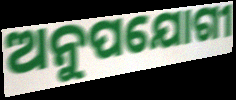
ଅନୁପଯୋଗୀ